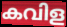
കവിള